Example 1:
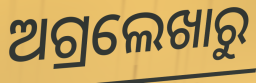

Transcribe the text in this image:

ଅଗ୍ରଲେଖାରୁ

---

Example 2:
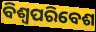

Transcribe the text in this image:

ବିଶ୍ୱପରିବେଶ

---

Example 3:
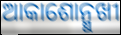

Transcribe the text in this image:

ଆକାଶୋନ୍ମୁଖୀ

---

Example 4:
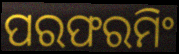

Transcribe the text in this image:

ପରଫରମିଂ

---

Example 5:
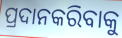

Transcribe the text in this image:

ପ୍ରଦାନକରିବାକୁ